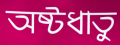
অষ্টধাতু